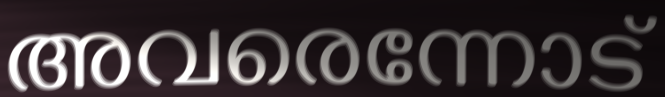
അവരെന്നോട്